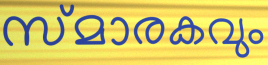
സ്മാരകവും